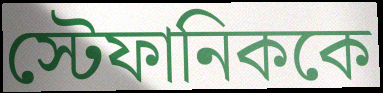
স্টেফানিককে